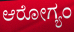
ಆರೋಗ್ಯಂ